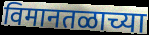
विमानतळाच्या